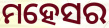
ମହେସର